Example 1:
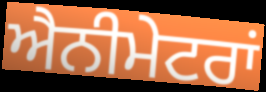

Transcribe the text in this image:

ਐਨੀਮੇਟਰਾਂ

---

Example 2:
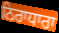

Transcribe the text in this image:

ਨਿਰਾਧਾਰਾ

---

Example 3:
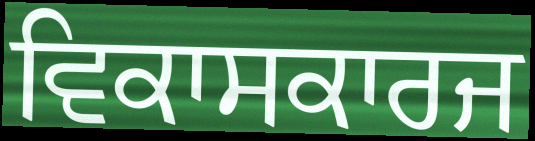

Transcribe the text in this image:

ਵਿਕਾਸਕਾਰਜ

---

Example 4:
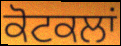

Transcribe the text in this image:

ਕੋਟਕਲਾਂ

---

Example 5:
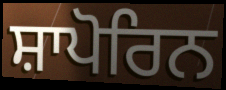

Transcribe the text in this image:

ਸ਼ਾਪੋਰਿਨ